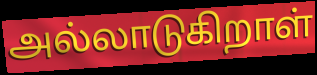
அல்லாடுகிறாள்